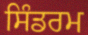
ਸਿੰਡਰਮ